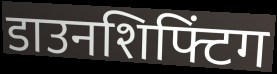
डाउनशिफ्टिंग